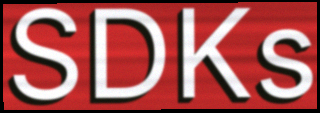
SDKs